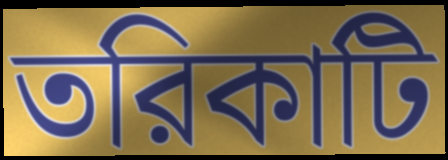
তরিকাটি